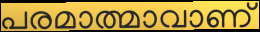
പരമാത്മാവാണ്